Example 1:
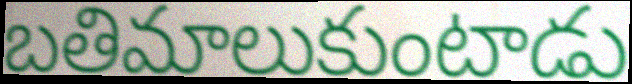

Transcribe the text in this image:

బతిమాలుకుంటాడు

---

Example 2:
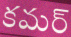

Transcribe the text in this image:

కమర్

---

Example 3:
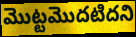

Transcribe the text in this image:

మొట్టమొదటిదని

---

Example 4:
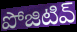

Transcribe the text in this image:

పోజిటివ్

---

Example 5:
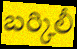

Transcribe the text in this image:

బర్కిలీ